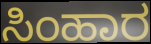
ಸಿಂಹಾರ